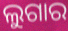
ଲୁଗାର